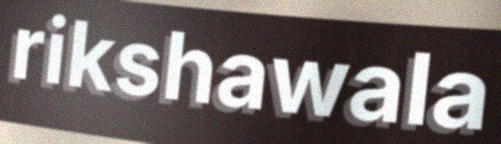
rikshawala